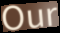
Our